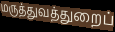
மருத்துவத்துறைப்